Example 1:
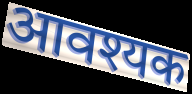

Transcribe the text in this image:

आवश्‍यक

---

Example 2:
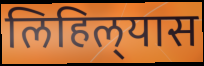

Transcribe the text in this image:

लिहिल्यास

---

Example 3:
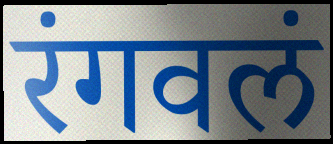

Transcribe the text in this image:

रंगवलं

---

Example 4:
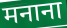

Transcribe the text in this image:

मनाना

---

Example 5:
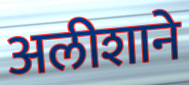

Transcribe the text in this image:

अलीशाने